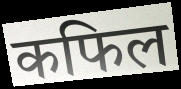
कफिल